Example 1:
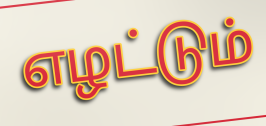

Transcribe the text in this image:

எழட்டும்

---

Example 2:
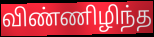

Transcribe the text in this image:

விண்ணிழிந்த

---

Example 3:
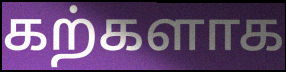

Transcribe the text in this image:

கற்களாக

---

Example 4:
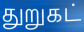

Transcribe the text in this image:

துறுகட்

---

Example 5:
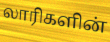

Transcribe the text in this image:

லாரிகளின்